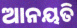
ଆନୟତି